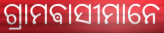
ଗ୍ରାମଵାସୀମାନେ